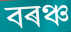
বৰঞ্চ